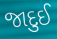
જાદુઈ